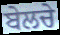
ਬੇਲਚੇ